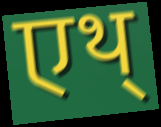
एथ्